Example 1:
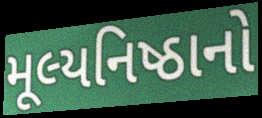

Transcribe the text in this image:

મૂલ્યનિષ્ઠાનો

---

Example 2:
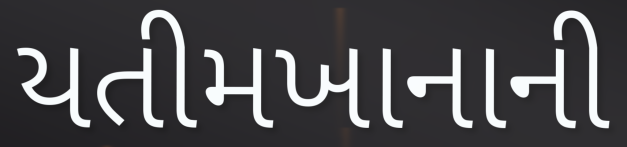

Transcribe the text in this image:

યતીમખાનાની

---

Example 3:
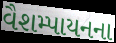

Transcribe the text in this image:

વૈશમ્પાયનના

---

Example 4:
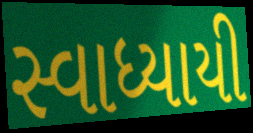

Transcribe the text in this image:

સ્વાધ્યાયી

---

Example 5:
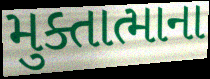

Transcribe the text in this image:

મુક્તાત્માના